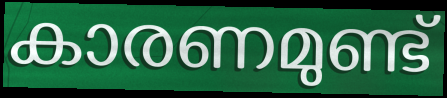
കാരണമുണ്ട്